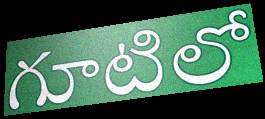
గూటిలో